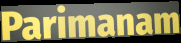
Parimanam